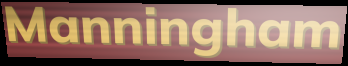
Manningham